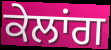
ਕੇਲਾਂਗ